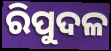
ରିପୁଦଳ